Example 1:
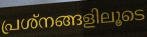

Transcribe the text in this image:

പ്രശ്നങ്ങളിലൂടെ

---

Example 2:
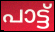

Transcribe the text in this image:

പാട്ട്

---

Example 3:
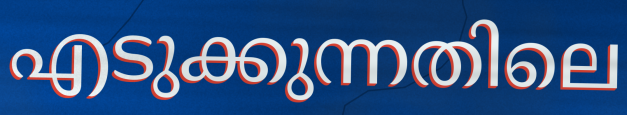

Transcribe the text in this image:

എടുക്കുന്നതിലെ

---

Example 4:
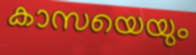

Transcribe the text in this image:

കാസയെയും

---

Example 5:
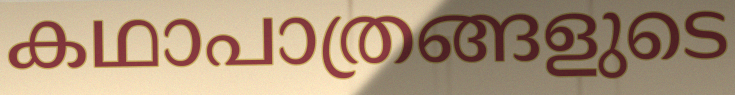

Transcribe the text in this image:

കഥാപാത്രങ്ങളുടെ